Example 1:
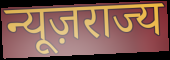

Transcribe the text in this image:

न्यूज़राज्य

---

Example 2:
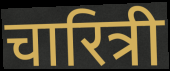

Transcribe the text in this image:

चारित्री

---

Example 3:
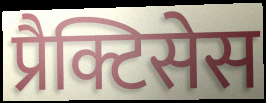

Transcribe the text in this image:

प्रैक्टिसेस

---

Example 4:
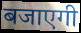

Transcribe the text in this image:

बजाएगी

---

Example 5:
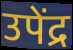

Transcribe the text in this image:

उपेंद्र